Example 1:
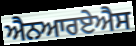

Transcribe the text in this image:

ਐਨਆਰਏਐਸ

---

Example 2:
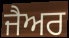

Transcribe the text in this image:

ਜੈਅਰ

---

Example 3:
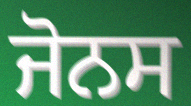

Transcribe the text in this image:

ਜੋਨਸ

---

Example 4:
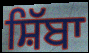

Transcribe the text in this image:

ਸ਼ਿੱਬਾ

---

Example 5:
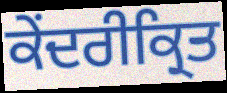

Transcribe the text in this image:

ਕੇਂਦਰੀਕ੍ਰਿਤ